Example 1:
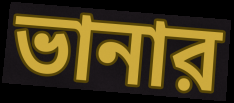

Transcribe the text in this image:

ভানার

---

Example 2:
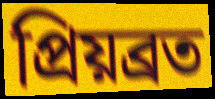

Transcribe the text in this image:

প্রিয়ব্রত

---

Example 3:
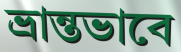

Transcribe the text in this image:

ভ্রান্তভাবে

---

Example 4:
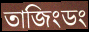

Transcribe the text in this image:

তাজিংডং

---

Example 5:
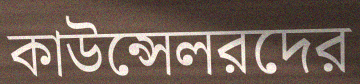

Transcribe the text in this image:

কাউন্সেলরদের